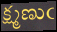
క్ష్మణుఁ